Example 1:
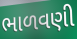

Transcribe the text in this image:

ભાળવણી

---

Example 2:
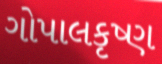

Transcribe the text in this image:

ગોપાલકૃષ્ણ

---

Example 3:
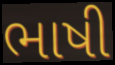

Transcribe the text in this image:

ભાષી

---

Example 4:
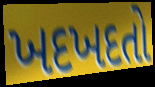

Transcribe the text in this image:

ખદખદતો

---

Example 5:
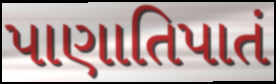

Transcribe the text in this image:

પાણાતિપાતં